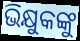
ଭିକ୍ଷୁକଙ୍କୁ